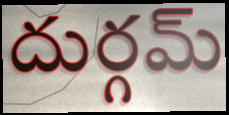
దుర్గమ్